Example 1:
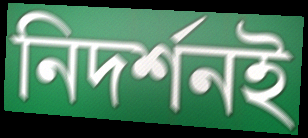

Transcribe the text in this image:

নিদর্শনই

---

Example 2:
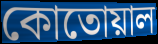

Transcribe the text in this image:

কোতোয়াল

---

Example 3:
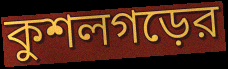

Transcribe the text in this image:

কুশলগড়ের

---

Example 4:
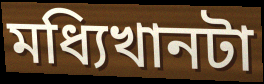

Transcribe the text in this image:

মধ্যিখানটা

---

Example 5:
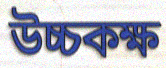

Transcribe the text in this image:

উচ্চকক্ষ